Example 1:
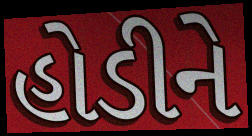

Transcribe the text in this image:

હોડીને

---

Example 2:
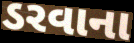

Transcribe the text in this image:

ડરવાના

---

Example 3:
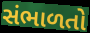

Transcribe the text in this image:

સંભાળતો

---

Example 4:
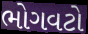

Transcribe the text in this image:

ભોગવટો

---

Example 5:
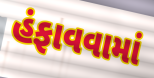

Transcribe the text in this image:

હંફાવવામાં